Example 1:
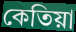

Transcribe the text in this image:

কেতিয়া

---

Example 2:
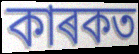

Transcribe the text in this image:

কাৰকত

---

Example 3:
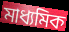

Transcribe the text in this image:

মাধ্যমিক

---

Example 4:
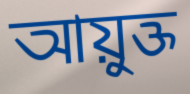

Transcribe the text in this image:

আয়ুক্ত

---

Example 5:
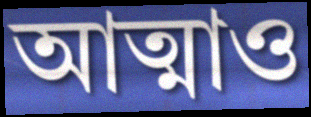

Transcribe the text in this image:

আত্মাও